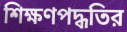
শিক্ষণপদ্ধতির